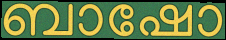
ബാഷോ